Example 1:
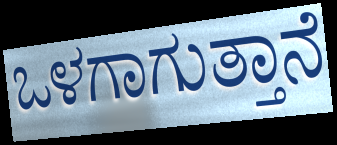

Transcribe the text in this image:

ಒಳಗಾಗುತ್ತಾನೆ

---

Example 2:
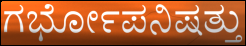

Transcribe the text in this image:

ಗರ್ಭೋಪನಿಷತ್ತು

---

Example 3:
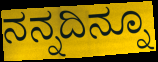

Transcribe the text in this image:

ನನ್ನದಿನ್ನೂ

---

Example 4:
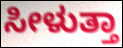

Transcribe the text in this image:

ಸೀಳುತ್ತಾ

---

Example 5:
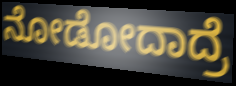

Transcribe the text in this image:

ನೋಡೋದಾದ್ರೆ